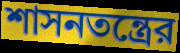
শাসনতন্ত্রের